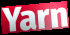
Yarn